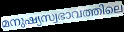
മനുഷ്യസ്വഭാവത്തിലെ